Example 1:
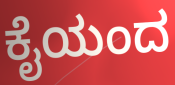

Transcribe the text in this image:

ಕೈಯಂದ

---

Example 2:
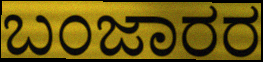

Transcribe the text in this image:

ಬಂಜಾರರ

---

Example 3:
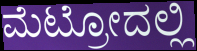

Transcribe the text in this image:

ಮೆಟ್ರೋದಲ್ಲಿ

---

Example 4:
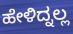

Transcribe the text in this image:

ಹೇಳಿದ್ನಲ್ಲ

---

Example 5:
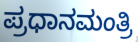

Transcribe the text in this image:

ಪ್ರಧಾನಮಂತ್ರಿ